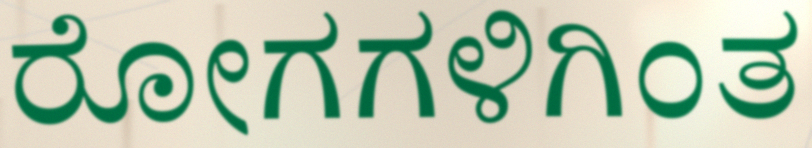
ರೋಗಗಳಿಗಿಂತ